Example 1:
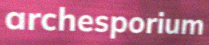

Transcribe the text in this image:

archesporium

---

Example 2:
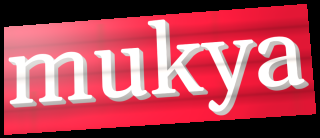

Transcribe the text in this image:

mukya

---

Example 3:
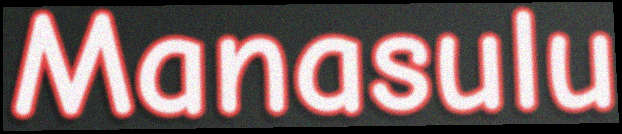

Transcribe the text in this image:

Manasulu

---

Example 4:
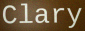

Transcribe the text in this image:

Clary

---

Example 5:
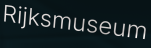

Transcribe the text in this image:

Rijksmuseum